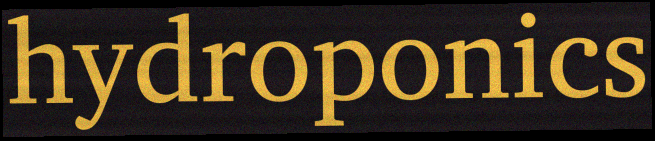
hydroponics